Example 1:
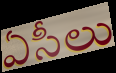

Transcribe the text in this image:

ఏసీలు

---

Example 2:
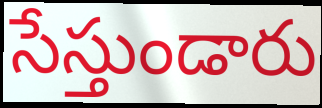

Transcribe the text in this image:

సేస్తుండారు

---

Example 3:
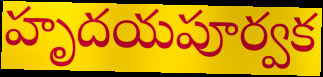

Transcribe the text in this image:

హృదయపూర్వక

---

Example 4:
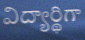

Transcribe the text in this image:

విద్యార్థిగా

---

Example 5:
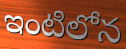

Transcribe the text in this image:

ఇంటిలోన